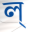
ল্